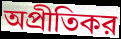
অপ্রীতিকর